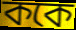
ককে